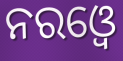
ନରଓ୍ୱେ